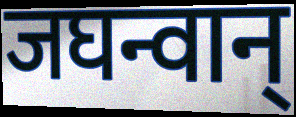
जघन्वान्